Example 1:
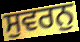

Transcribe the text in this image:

ਸੁਵਰਨੁ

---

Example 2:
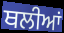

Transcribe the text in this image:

ਥਲੀਆਂ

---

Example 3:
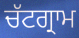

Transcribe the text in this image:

ਚੱਟਗ੍ਰਾਮ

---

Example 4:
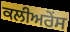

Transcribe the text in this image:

ਕਲੀਅਰੇਂਸ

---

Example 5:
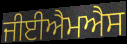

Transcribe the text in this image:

ਜੀਈਐਮਐਸ